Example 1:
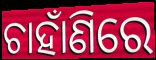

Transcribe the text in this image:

ଚାହାଁଣିରେ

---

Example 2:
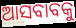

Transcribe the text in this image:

ଆସବାବକୁ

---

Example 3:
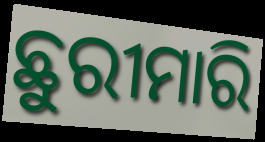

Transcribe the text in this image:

ଛୁରୀମାରି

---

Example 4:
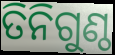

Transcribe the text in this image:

ତିନିଗୁଣ୍ଠ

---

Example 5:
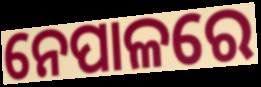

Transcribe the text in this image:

ନେପାଳରେ